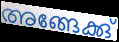
അങ്ങേക്കു്